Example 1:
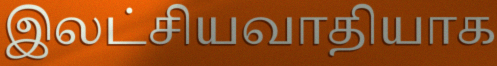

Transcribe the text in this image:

இலட்சியவாதியாக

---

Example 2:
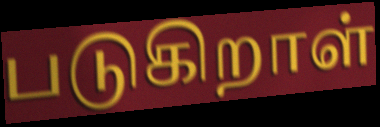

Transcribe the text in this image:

படுகிறாள்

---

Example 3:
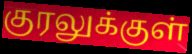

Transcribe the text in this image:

குரலுக்குள்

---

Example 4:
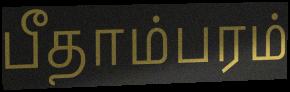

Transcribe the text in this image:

பீதாம்பரம்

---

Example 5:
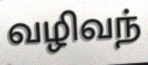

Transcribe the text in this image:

வழிவந்